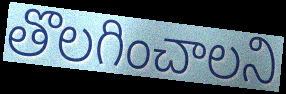
తొలగించాలని